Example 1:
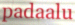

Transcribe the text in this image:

padaalu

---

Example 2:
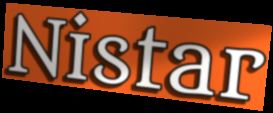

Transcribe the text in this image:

Nistar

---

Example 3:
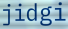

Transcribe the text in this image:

jidgi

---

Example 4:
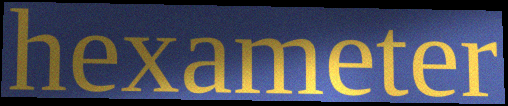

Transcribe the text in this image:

hexameter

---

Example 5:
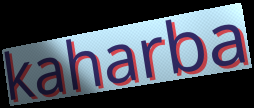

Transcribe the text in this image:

kaharba